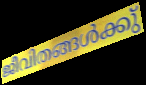
ജീവിതങ്ങൾക്കു്